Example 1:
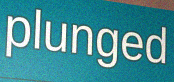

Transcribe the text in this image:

plunged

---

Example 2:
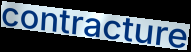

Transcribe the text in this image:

contracture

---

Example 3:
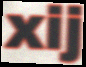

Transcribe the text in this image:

xij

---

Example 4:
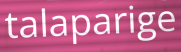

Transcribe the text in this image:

talaparige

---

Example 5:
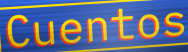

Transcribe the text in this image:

Cuentos